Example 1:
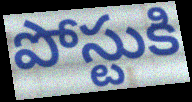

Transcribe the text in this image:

పోస్టుకి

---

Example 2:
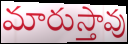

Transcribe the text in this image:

మారుస్తావు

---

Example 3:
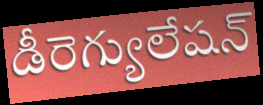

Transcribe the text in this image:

డీరెగ్యులేషన్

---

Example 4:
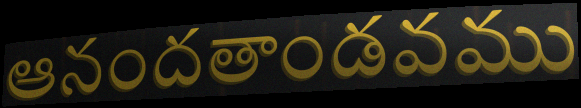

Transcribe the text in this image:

ఆనందతాండవము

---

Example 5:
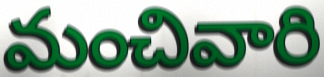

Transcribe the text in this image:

మంచివారి